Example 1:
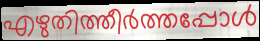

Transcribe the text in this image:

എഴുതിത്തീർത്തപ്പോൾ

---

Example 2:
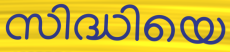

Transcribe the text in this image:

സിദ്ധിയെ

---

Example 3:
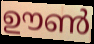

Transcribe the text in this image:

ഊൺ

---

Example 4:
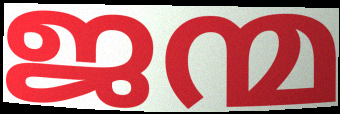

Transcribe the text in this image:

ജന്മ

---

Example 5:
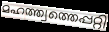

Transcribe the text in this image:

മഹത്ത്വത്തെപ്പറ്റി